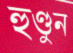
হুণ্ডুন